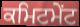
ਕਮਿਟਮੇਂਟ